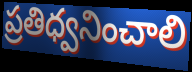
ప్రతిధ్వనించాలి